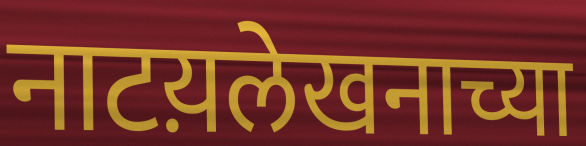
नाटय़लेखनाच्या